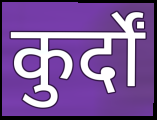
कुर्दों